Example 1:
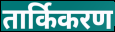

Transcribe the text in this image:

तार्किकरण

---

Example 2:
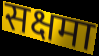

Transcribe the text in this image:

सक्षमा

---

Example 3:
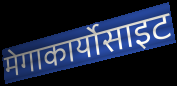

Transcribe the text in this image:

मेगाकार्योसाइट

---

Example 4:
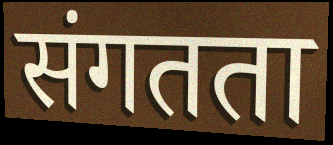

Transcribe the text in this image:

संगतता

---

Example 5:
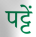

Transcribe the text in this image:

पट्टें